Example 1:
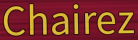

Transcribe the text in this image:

Chairez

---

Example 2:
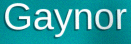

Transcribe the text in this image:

Gaynor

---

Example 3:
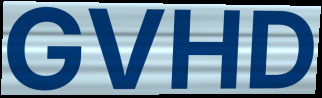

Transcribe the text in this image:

GVHD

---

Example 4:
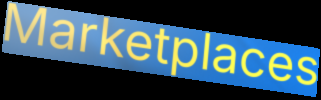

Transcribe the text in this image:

Marketplaces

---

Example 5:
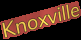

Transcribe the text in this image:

Knoxville